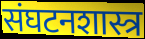
संघटनशास्त्र